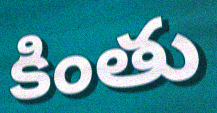
కింతు